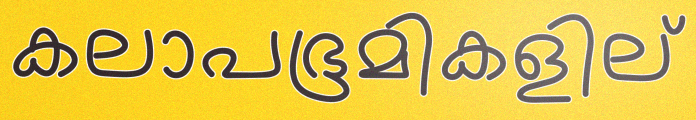
കലാപഭൂമികളില്